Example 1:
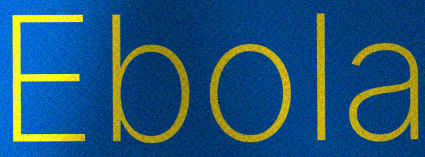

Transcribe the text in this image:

Ebola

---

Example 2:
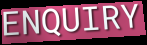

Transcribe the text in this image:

ENQUIRY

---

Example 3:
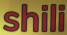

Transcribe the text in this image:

shili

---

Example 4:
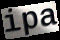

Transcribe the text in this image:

ipa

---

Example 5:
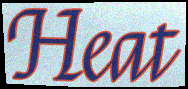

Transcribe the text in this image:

Heat